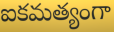
ఐకమత్యంగా